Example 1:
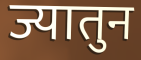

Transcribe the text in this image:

ज्यातुन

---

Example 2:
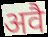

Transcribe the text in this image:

अवै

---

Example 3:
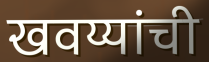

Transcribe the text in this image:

खवय्यांची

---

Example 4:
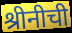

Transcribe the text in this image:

श्रीनीची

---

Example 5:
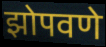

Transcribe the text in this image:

झोपवणे